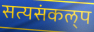
सत्यसंकल्प